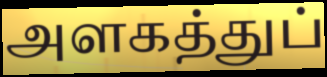
அளகத்துப்